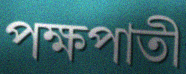
পক্ষপাতী